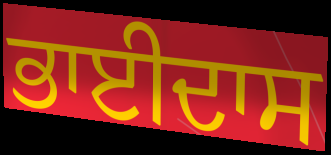
ਭਾਈਦਾਸ